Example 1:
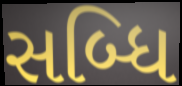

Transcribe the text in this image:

સબ્ધિ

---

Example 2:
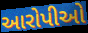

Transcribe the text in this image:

આરોપીઓ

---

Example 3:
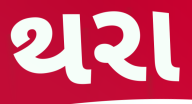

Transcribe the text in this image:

થરા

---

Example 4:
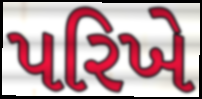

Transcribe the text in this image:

પરિખે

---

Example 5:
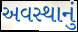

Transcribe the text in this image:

અવસ્થાનું